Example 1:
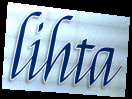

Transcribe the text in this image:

lihta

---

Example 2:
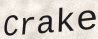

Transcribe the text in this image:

Crake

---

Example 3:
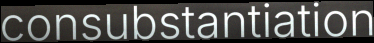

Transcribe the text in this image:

consubstantiation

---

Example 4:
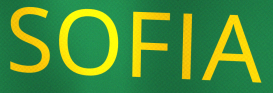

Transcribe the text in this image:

SOFIA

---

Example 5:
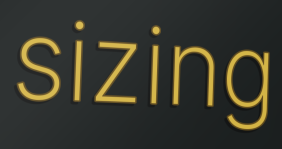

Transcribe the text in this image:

sizing